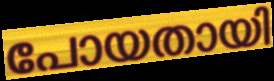
പോയതായി